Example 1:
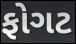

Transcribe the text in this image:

ફોગટ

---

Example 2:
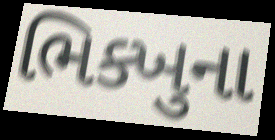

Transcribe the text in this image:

ભિક્ખુના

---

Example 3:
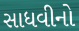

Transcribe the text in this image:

સાધવીનો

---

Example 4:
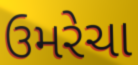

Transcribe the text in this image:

ઉમરેચા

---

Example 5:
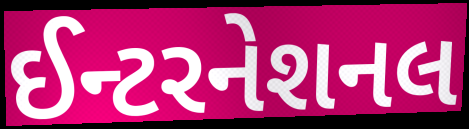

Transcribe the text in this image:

ઈન્ટરનેશનલ